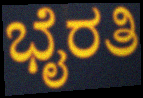
ಭೈರತಿ